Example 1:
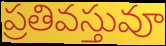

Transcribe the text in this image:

ప్రతివస్తువూ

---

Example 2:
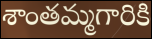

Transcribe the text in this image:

శాంతమ్మగారికి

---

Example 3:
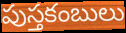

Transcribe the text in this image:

పుస్తకంబులు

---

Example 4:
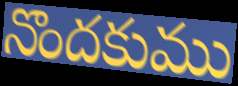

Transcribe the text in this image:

నొందకుము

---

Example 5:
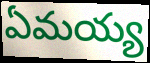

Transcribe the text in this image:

ఏమయ్య